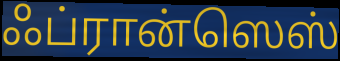
ஃப்ரான்ஸெஸ்